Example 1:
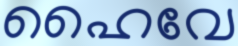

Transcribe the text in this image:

ഹൈവേ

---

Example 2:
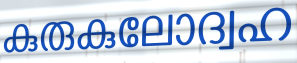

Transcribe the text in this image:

കുരുകുലോദ്വഹ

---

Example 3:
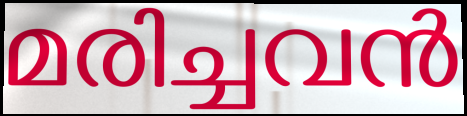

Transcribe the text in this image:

മരിച്ചവൻ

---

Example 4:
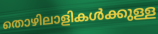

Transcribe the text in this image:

തൊഴിലാളികൾക്കുള്ള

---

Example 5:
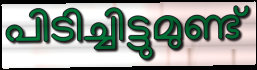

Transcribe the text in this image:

പിടിച്ചിട്ടുമുണ്ട്